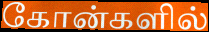
கோன்களில்